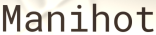
Manihot